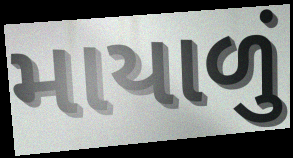
માયાળું